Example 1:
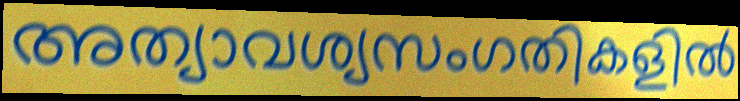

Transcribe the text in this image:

അത്യാവശ്യസംഗതികളിൽ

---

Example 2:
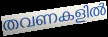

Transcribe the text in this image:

തവണകളിൽ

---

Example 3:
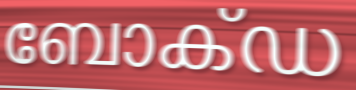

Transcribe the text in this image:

ബോക്ഡ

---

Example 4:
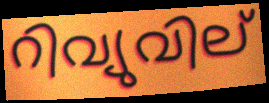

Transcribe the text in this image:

റിവ്യുവില്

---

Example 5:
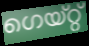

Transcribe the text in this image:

ഗെയ്റ്റ്